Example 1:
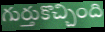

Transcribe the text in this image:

గుర్తుకొచ్చింది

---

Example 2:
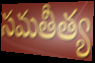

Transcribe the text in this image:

సమతీత్య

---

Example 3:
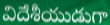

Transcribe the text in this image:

విదేశీయుడుగా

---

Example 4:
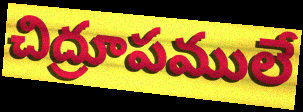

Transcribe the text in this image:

చిద్రూపములే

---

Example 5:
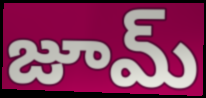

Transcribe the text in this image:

జూమ్